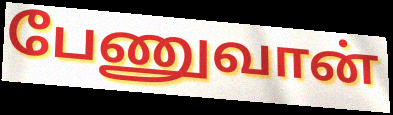
பேணுவான்